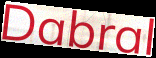
Dabral